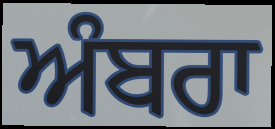
ਅੰਬਰਾ